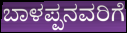
ಬಾಳಪ್ಪನವರಿಗೆ